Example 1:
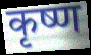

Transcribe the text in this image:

कृष्ण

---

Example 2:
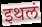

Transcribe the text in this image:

इथलं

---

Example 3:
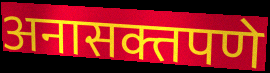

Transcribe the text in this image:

अनासक्तपणे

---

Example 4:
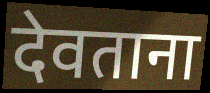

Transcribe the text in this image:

देवताना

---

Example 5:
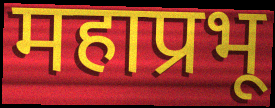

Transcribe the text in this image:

महाप्रभू